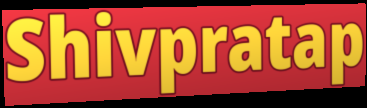
Shivpratap